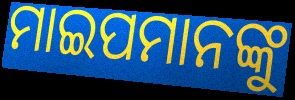
ମାଇପମାନଙ୍କୁ